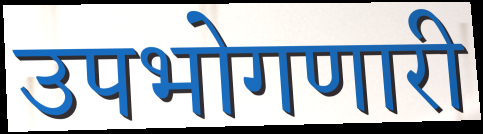
उपभोगणारी